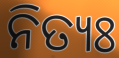
ନିତ୍ଯଃ